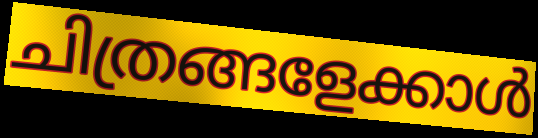
ചിത്രങ്ങളേക്കാൾ